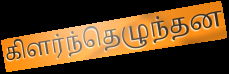
கிளர்ந்தெழுந்தன